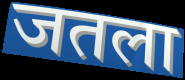
जतला